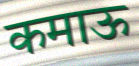
कमाऊ